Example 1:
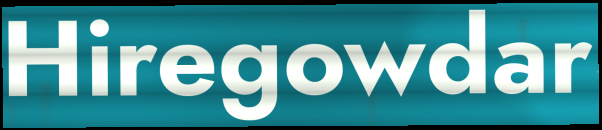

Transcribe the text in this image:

Hiregowdar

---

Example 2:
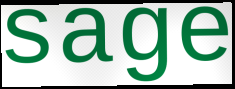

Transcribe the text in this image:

sage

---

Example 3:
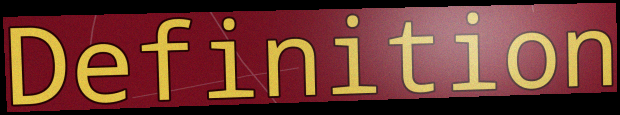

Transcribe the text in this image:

Definition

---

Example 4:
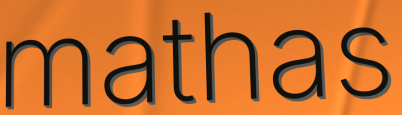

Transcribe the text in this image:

mathas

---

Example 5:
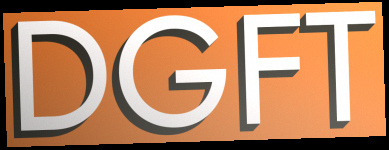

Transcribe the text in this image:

DGFT